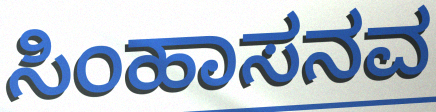
ಸಿಂಹಾಸನವ